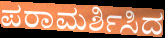
ಪರಾಮರ್ಶಿಸಿದ